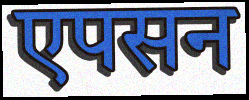
एपसन